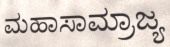
ಮಹಾಸಾಮ್ರಾಜ್ಯ